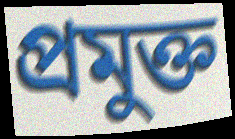
প্রমুক্ত